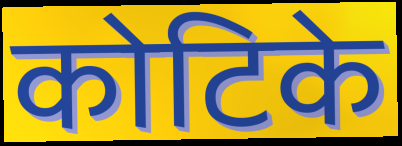
कोटिके